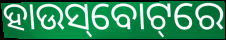
ହାଉସ୍‌ବୋଟ୍‌ରେ